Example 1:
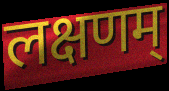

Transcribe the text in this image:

लक्षणम्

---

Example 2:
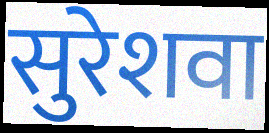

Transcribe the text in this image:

सुरेशवा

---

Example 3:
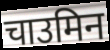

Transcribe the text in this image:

चाउमिन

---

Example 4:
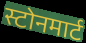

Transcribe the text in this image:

स्टोनमार्ट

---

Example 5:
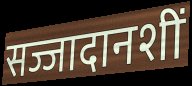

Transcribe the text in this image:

सज्जादानशीं